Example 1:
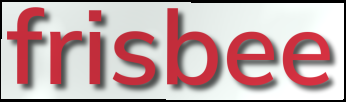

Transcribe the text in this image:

frisbee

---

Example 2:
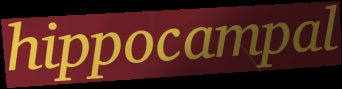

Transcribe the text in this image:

hippocampal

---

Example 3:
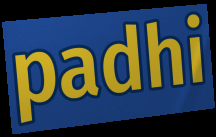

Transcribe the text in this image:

padhi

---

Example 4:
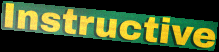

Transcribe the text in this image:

Instructive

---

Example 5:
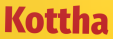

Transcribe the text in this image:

Kottha